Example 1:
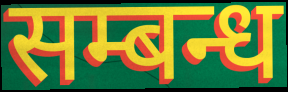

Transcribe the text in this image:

सम्बन्ध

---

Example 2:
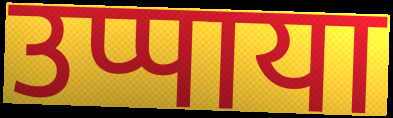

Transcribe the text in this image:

उप्पाया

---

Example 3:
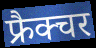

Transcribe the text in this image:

फ्रैक्चर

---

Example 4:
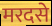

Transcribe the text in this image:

मरदसे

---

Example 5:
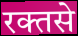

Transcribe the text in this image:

रक्तसे